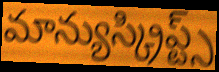
మాన్యుస్క్రిప్ట్స్